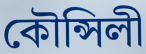
কৌন্সিলী